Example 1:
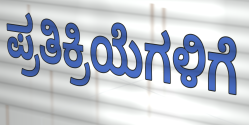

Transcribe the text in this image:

ಪ್ರತಿಕ್ರಿಯೆಗಳಿಗೆ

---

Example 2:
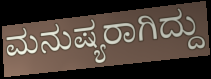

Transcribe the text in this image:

ಮನುಷ್ಯರಾಗಿದ್ದು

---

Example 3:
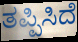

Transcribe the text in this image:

ತಪ್ಪಿಸಿದೆ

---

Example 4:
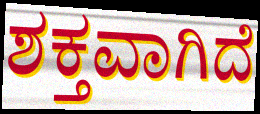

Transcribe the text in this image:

ಶಕ್ತವಾಗಿದೆ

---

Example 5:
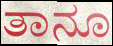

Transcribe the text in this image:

ತಾನೂ